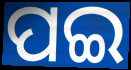
ପଇ